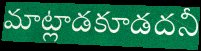
మాట్లాడకూడదనీ